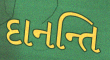
દાનન્તિ